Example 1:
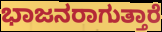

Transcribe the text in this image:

ಭಾಜನರಾಗುತ್ತಾರೆ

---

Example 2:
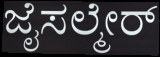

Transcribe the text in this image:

ಜೈಸಲ್ಮೇರ್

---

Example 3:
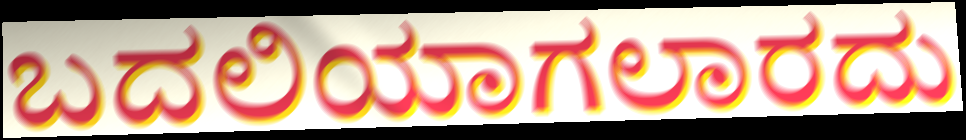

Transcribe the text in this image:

ಬದಲಿಯಾಗಲಾರದು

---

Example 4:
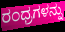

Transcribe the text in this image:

ರಂಧ್ರಗಳನ್ನು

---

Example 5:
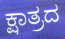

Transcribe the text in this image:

ಕ್ಷಾತ್ರದ